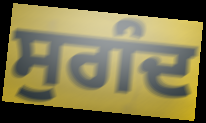
ਸੁਗੰਦ